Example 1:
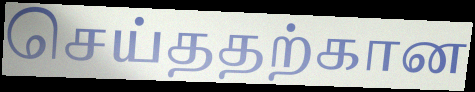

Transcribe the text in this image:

செய்ததற்கான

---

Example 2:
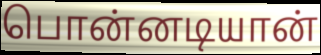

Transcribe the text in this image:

பொன்னடியான்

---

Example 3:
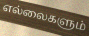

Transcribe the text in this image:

எல்லைகளும்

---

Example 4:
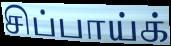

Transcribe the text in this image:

சிப்பாய்க்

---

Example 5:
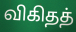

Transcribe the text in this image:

விகிதத்